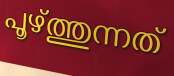
പൂഴ്ത്തുന്നത്